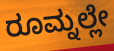
ರೂಮ್ನಲ್ಲೇ